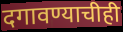
दगावण्याचीही